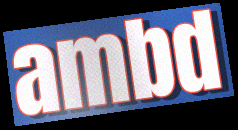
ambd